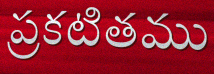
ప్రకటితము